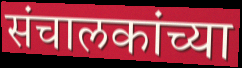
संचालकांच्या